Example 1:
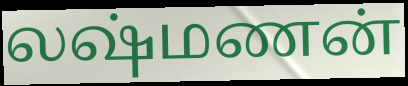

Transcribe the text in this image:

லஷ்மணன்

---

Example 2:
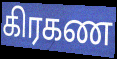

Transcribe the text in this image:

கிரகண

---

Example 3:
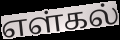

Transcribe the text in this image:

எள்கல்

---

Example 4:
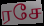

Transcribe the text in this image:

ரசே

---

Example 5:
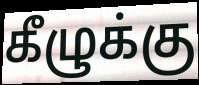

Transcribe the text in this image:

கீழுக்கு